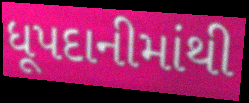
ધૂપદાનીમાંથી